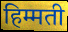
हिम्मती